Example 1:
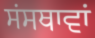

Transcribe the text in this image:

ਸਂਸਥਾਵਾਂ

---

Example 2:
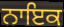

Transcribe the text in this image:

ਨਾਇਕ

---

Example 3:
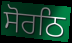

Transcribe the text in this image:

ਸੋਰਠਿ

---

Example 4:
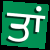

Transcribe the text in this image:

ਤਾਂ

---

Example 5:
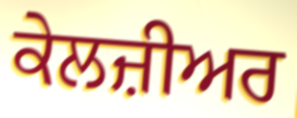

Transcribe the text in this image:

ਕੇਲਜ਼ੀਅਰ